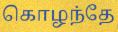
கொழந்தே